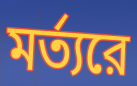
মর্ত্যরে